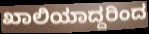
ಖಾಲಿಯಾದ್ದರಿಂದ